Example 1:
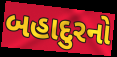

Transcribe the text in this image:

બહાદુરનો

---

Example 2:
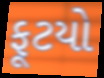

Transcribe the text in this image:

ફૂટયો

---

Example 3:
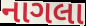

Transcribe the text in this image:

નાગલા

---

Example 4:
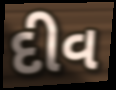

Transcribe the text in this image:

દીવ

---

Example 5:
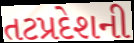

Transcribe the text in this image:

તટપ્રદેશની